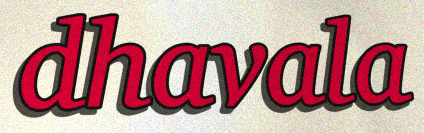
dhavala